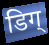
डिग्